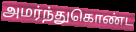
அமர்ந்துகொண்ட